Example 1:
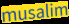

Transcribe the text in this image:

musalim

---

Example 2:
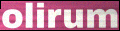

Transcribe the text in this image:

olirum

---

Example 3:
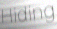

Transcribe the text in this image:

Hiding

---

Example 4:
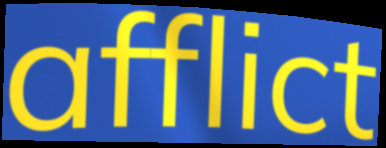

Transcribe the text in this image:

afflict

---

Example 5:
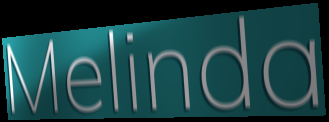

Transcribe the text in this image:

Melinda